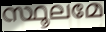
സ്ഥൂലമേ